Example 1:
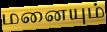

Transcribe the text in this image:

மனையும்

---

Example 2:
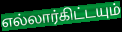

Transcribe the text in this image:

எல்லார்கிட்டயும்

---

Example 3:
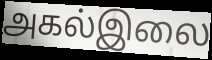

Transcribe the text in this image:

அகல்இலை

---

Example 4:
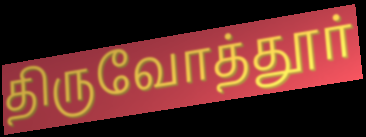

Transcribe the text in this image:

திருவோத்தூர்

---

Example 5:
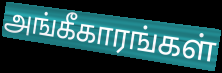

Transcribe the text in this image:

அங்கீகாரங்கள்